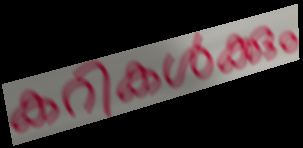
കറികൾക്കും